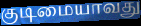
குடிமையாவது